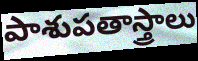
పాశుపతాస్త్రాలు